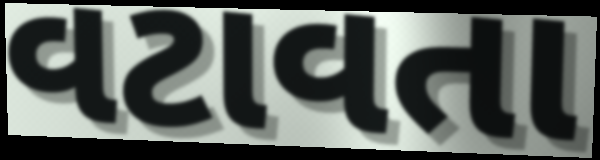
વટાવતા